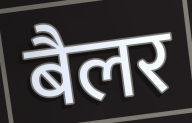
बैलर